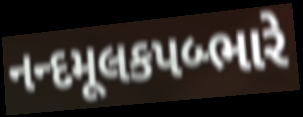
નન્દમૂલકપબ્ભારે